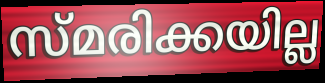
സ്മരിക്കയില്ല